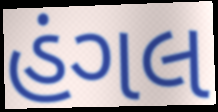
હંગલ